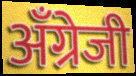
अँग्रेजी